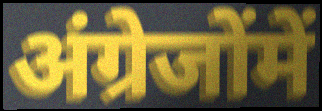
अंग्रेजोंमें